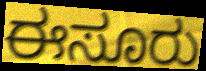
ಈಸೂರು